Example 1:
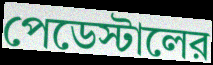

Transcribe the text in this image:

পেডেস্টালের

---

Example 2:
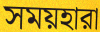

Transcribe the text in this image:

সময়হারা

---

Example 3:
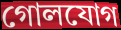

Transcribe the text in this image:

গোলযোগ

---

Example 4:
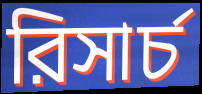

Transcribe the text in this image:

রিসার্চ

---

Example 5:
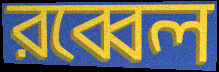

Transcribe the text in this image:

রব্বেল